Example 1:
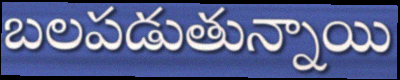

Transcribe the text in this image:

బలపడుతున్నాయి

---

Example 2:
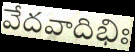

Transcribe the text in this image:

వేదవాదిభిః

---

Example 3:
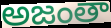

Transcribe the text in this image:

అజంతా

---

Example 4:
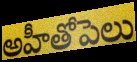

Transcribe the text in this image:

అహీతోపెలు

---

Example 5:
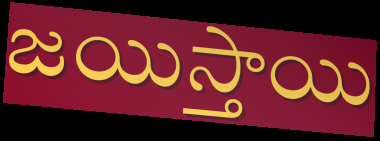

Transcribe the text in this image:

జయిస్తాయి